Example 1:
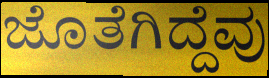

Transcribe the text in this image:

ಜೊತೆಗಿದ್ದೆವು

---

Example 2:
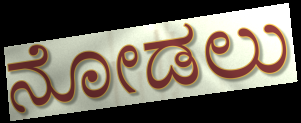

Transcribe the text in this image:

ನೋಡಲು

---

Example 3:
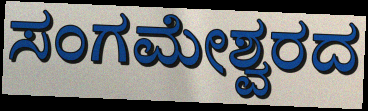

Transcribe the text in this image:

ಸಂಗಮೇಶ್ವರದ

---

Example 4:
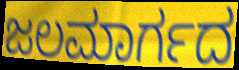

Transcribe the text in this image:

ಜಲಮಾರ್ಗದ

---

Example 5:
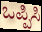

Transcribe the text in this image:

ಒಪ್ಪಿಸಿ